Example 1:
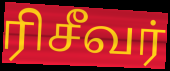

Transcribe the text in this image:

ரிசீவர்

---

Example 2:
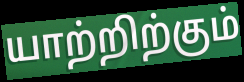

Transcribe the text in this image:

யாற்றிற்கும்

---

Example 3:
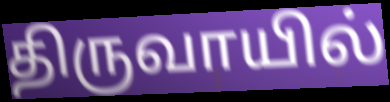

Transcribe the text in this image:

திருவாயில்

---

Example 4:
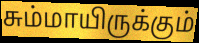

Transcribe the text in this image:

சும்மாயிருக்கும்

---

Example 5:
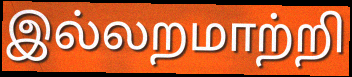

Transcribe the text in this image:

இல்லறமாற்றி